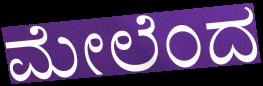
ಮೇಲೆಂದ